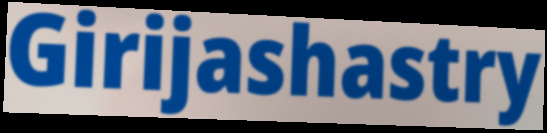
Girijashastry